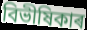
বিভীষিকাৰ